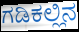
ಗಡಿಕಲ್ಲಿನ